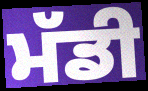
ਮੱਡੀ